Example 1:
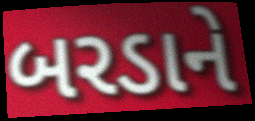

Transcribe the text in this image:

બરડાને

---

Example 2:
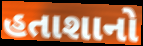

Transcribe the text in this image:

હતાશાનો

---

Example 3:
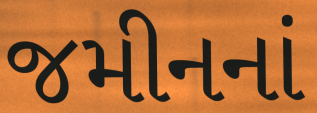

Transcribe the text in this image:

જમીનનાં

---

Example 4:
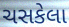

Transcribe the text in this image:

ચસકેલા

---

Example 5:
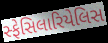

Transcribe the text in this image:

સ્ફેસિલારિયેલિસ